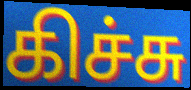
கிச்சு